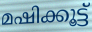
മഷിക്കൂട്ട്